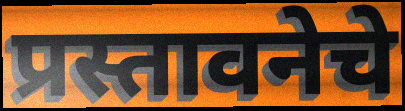
प्रस्तावनेचे